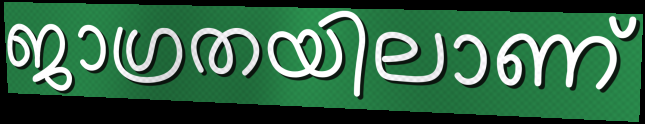
ജാഗ്രതയിലാണ്